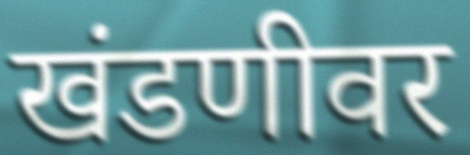
खंडणीवर